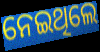
ନେଇଥିଲେ